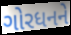
ગોરધનને